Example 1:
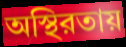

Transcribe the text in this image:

অস্থিরতায়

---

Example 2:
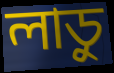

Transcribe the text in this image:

লাডু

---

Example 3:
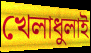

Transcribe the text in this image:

খেলাধুলাই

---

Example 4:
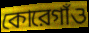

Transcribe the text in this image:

কোরেগাঁও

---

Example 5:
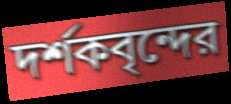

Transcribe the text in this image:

দর্শকবৃন্দের